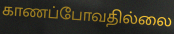
காணப்போவதில்லை